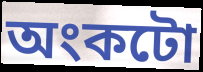
অংকটো